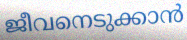
ജീവനെടുക്കാൻ